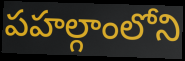
పహల్గాంలోని